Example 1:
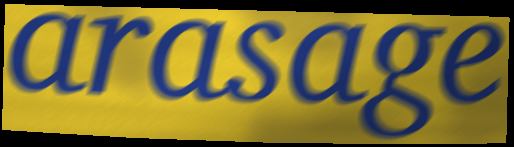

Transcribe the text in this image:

arasage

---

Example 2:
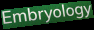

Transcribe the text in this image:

Embryology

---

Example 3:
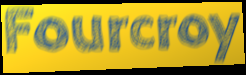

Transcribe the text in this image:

Fourcroy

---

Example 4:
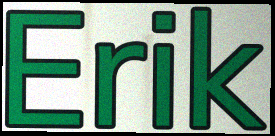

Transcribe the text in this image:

Erik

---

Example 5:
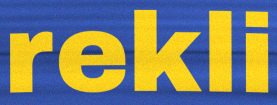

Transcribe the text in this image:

rekli